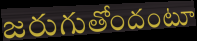
జరుగుతోందంటూ